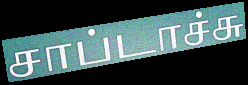
சாப்டாச்சு